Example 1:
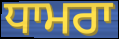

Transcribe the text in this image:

ਧਾਮਰਾ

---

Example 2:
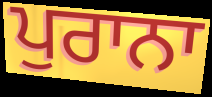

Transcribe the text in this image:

ਪੁਰਾਨਾ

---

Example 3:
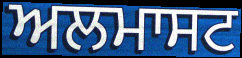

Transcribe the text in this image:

ਅਲਮਾਸਟ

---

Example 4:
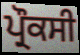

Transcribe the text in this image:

ਪ੍ਰੌਕਸੀ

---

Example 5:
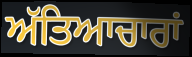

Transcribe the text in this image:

ਅੱਤਿਆਚਾਰਾਂ